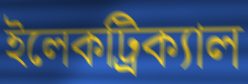
ইলেকট্রিক্যাল